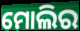
ମୋଲିର